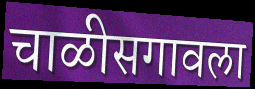
चाळीसगावला